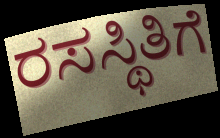
ರಸಸ್ಥಿತಿಗೆ